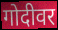
गोदीवर